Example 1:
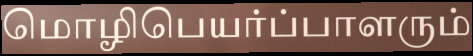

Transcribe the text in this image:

மொழிபெயர்ப்பாளரும்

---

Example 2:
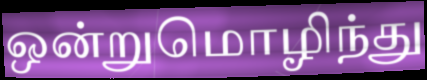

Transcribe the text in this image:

ஒன்றுமொழிந்து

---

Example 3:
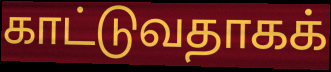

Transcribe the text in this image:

காட்டுவதாகக்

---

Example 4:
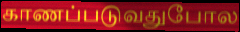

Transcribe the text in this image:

காணப்படுவதுபோல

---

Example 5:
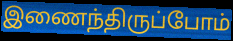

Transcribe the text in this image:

இணைந்திருப்போம்